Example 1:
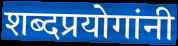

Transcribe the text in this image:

शब्दप्रयोगांनी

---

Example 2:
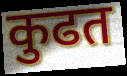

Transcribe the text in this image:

कुढत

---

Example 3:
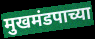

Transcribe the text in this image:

मुखमंडपाच्या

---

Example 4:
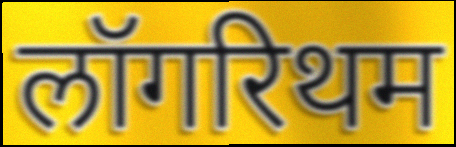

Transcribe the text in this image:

लॉगरिथम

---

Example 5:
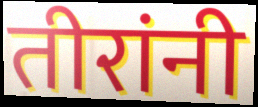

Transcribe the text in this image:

तीरांनी